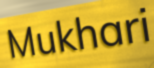
Mukhari